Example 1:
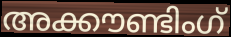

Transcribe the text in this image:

അക്കൗണ്ടിംഗ്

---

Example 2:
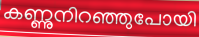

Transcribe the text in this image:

കണ്ണുനിറഞ്ഞുപോയി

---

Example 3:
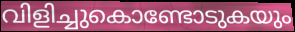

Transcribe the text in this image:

വിളിച്ചുകൊണ്ടോടുകയും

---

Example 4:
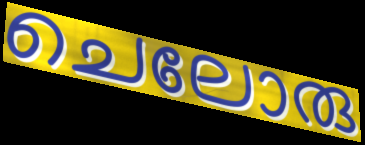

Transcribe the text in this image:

ചെലോരു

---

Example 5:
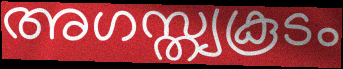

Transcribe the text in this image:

അഗസ്ത്യകൂടം